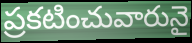
ప్రకటించువారునై